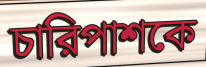
চারিপাশকে